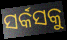
ସର୍କସକୁ